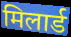
मिलार्ड